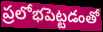
ప్రలోభపెట్టడంతో